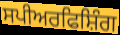
ਸਪੀਅਰਫਿਸ਼ਿੰਗ